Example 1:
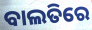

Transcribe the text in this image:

ବାଲତିରେ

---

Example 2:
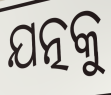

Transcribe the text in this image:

ଯତ୍ନକୁ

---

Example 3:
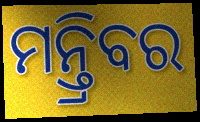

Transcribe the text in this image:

ମନ୍ତ୍ରିବର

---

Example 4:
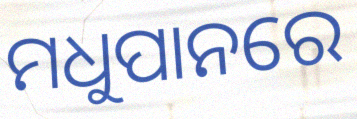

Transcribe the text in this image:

ମଧୁପାନରେ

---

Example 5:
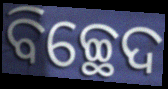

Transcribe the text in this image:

ବିଚ୍ଛେଦ